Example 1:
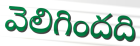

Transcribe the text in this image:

వెలిగిందది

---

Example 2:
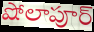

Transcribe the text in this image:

షోలాపూర్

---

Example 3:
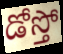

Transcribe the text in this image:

డోస్తో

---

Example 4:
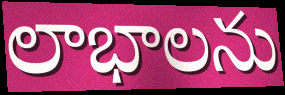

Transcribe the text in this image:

లాభాలను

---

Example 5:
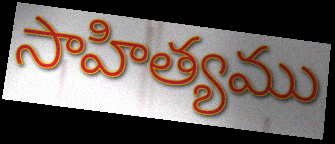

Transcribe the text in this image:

సాహిత్యము